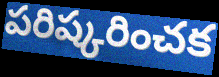
పరిష్కరించక